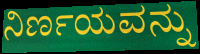
ನಿರ್ಣಯವನ್ನು